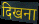
दिखना